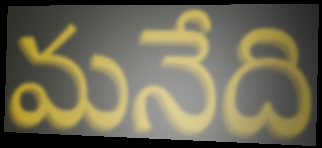
మనేది